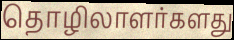
தொழிலாளர்களது